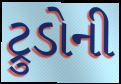
ટ્રુડોની